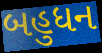
બહુધન